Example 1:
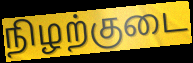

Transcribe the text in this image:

நிழற்குடை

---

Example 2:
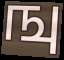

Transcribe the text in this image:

ஙு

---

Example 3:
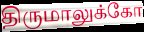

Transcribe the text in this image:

திருமாலுக்கோ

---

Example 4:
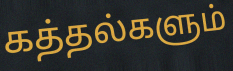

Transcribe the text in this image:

கத்தல்களும்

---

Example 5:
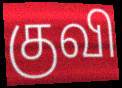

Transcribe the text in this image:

குவி